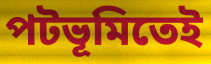
পটভূমিতেই